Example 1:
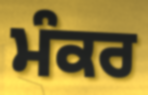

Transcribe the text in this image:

ਮੰਕਰ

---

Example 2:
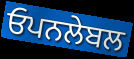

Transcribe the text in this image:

ਓਪਨਲੇਬਲ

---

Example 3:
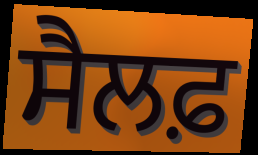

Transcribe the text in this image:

ਸੈਲਫ਼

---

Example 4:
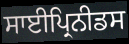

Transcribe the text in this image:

ਸਾਈਪ੍ਰਿਨੀਡਸ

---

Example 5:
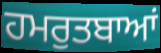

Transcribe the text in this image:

ਹਮਰੁਤਬਾਆਂ